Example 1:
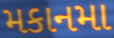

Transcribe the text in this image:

મકાનમા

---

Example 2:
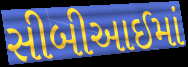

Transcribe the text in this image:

સીબીઆઈમાં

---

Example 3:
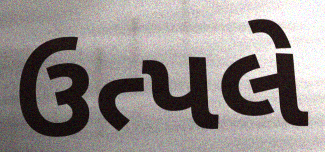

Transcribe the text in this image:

ઉત્પલે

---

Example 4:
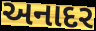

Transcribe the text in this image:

અનાદર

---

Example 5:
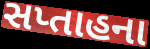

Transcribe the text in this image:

સપ્તાહના